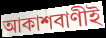
আকাশবাণীই